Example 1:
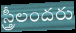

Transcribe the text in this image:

స్త్రీలందరు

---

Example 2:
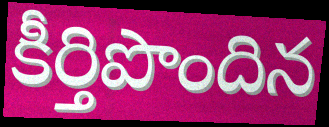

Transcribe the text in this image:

కీర్తిపొందిన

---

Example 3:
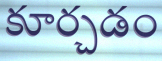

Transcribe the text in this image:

కూర్చడం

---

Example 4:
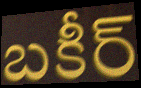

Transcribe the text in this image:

బకీర్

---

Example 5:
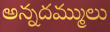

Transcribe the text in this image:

అన్నదమ్ములు